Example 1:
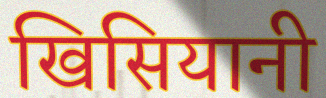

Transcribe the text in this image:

खिसियानी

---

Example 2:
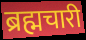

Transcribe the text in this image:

ब्रह्मचारी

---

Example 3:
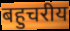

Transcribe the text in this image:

बहुचरीय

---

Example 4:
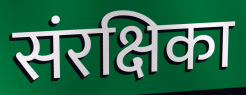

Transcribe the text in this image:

संरक्षिका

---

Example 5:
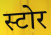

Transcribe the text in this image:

स्‍टोर